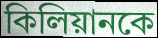
কিলিয়ানকে